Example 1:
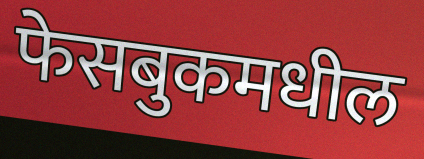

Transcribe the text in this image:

फेसबुकमधील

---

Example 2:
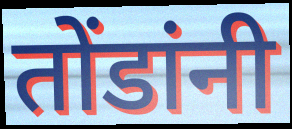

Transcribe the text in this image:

तोंडांनी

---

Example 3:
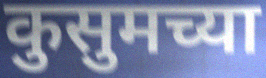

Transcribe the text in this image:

कुसुमच्या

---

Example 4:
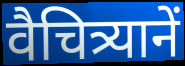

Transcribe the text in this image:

वैचित्र्यानें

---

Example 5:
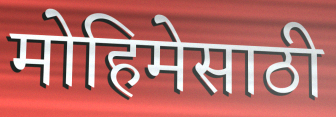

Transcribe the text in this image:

मोहिमेसाठी